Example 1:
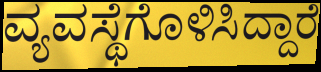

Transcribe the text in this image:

ವ್ಯವಸ್ಥೆಗೊಳಿಸಿದ್ದಾರೆ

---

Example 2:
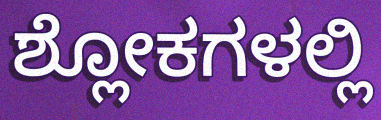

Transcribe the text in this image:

ಶ್ಲೋಕಗಳಲ್ಲಿ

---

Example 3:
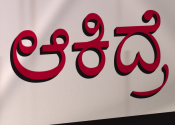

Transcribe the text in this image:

ಆಕಿದ್ರೆ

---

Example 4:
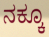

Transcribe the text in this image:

ನಕ್ಕೂ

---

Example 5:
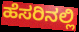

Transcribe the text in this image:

ಹೆಸರಿನಲ್ಲಿ